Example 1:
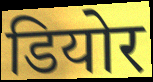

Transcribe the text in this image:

डियोर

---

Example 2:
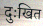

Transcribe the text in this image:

दुःखित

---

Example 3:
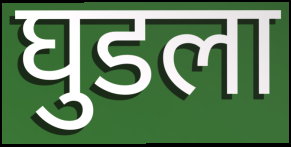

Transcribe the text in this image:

घुडला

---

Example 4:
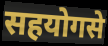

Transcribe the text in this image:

सहयोगसे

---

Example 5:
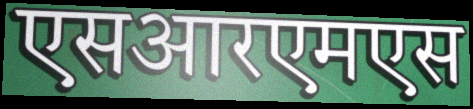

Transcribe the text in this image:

एसआरएमएस